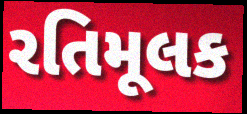
રતિમૂલક